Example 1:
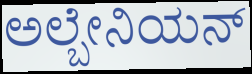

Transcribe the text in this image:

ಅಲ್ಬೇನಿಯನ್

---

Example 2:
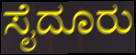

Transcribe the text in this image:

ಸೈದೂರು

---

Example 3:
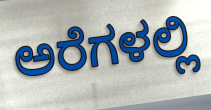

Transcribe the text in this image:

ಅರೆಗಳಲ್ಲಿ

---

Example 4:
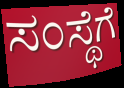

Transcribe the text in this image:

ಸಂಸ್ಥೆಗೆ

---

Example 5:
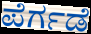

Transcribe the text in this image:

ಪೆರ್ಗಡೆ